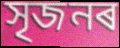
সৃজনৰ